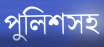
পুলিশসহ